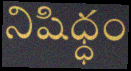
నిషిధ్ధం